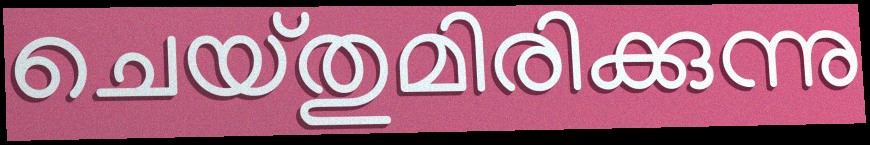
ചെയ്തുമിരിക്കുന്നു